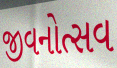
જીવનોત્સવ